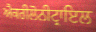
ਐਕਰੀਲੋਨੀਟ੍ਰਾਇਲ